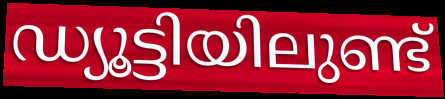
ഡ്യൂട്ടിയിലുണ്ട്